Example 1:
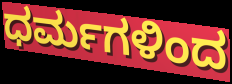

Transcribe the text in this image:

ಧರ್ಮಗಳಿಂದ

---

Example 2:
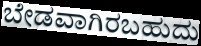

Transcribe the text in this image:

ಬೇಡವಾಗಿರಬಹುದು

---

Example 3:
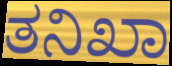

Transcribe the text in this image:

ತನಿಖಾ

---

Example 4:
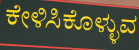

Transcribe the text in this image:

ಕೇಳಿಸಿಕೊಳ್ಳುವ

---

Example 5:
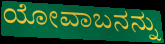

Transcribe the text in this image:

ಯೋವಾಬನನ್ನು